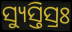
ସ୍ୟୁସ୍ତିସ୍ରଃ